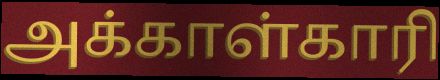
அக்காள்காரி